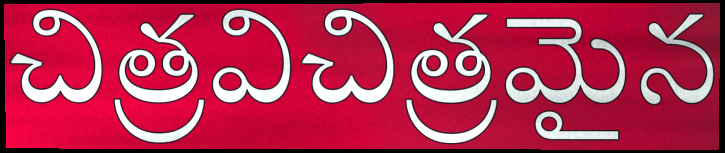
చిత్రవిచిత్రమైన